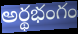
అర్థభంగం